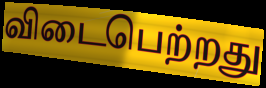
விடைபெற்றது